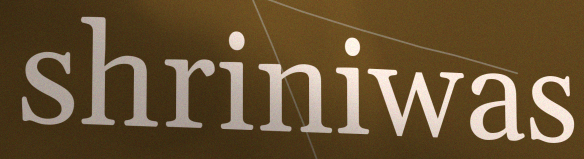
shriniwas